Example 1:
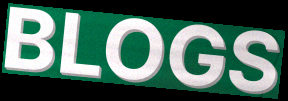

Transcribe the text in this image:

BLOGS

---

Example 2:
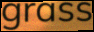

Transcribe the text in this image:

grass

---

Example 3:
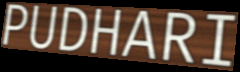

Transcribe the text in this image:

PUDHARI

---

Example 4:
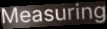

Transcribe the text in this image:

Measuring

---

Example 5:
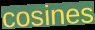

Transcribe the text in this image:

cosines